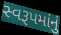
સ્વરૂપમાંનું